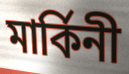
মার্কিনী